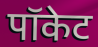
पॉकेट